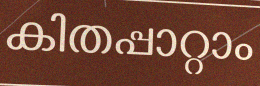
കിതപ്പാറ്റാം